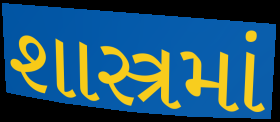
શાસ્ત્રમાં